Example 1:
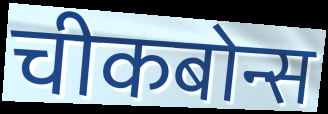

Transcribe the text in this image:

चीकबोन्स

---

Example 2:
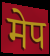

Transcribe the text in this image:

मेप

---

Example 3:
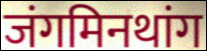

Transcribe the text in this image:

जंगमिनथांग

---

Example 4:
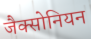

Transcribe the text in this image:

जैक्सोनियन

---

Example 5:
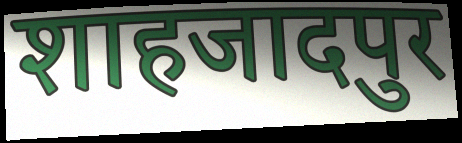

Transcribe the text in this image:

शाहजादपुर